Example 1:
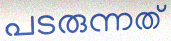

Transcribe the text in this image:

പടരുന്നത്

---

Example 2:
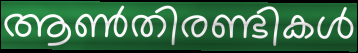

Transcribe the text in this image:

ആൺതിരണ്ടികൾ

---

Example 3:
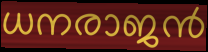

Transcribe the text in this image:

ധനരാജൻ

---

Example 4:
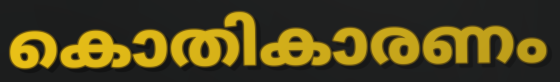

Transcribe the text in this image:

കൊതികാരണം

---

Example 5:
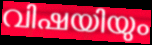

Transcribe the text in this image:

വിഷയിയും